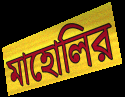
মাহোলির